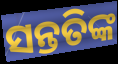
ସନ୍ତତିଙ୍କ